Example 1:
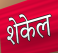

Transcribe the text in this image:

शेकेल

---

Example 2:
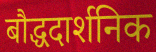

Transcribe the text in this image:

बौद्धदार्शनिक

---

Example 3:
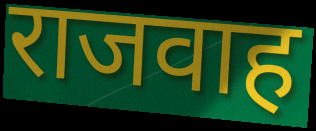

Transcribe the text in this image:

राजवाह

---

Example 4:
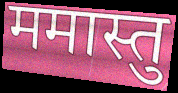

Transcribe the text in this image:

ममास्तु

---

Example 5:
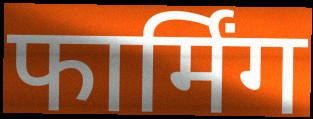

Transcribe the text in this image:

फार्मिंग